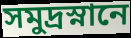
সমুদ্রস্নানে